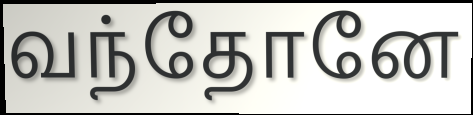
வந்தோனே